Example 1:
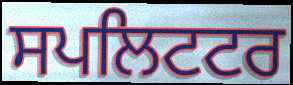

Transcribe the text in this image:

ਸਪਲਿਟਟਰ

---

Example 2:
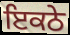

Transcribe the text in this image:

ਇਕਠੇ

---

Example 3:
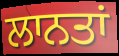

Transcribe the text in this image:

ਲਾਨਤਾਂ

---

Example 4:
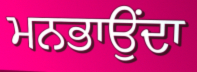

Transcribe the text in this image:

ਮਨਭਾਉਂਦਾ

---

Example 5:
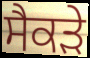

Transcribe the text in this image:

ਸੈਕੜੇ